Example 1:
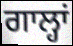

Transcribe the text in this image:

ਗਾਲ੍ਹਾਂ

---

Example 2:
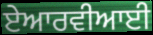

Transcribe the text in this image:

ਏਆਰਵੀਆਈ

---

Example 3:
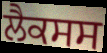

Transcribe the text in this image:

ਲੈਕਸਸ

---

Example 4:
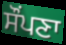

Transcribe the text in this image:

ਸੌਂਪਣਾ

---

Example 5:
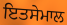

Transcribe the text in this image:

ਇਤਸੇਮਾਲ